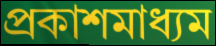
প্রকাশমাধ্যম